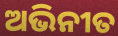
ଅଭିନୀତ